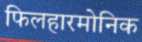
फिलहारमोनिक